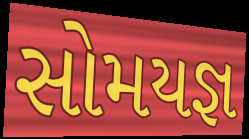
સોમયજ્ઞ